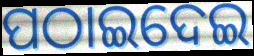
ପଠାଇଦେଇ